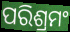
ପରିଶ୍ରମଂ